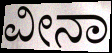
ವೀನಾ